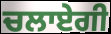
ਚਲਾਏਗੀ